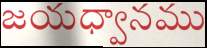
జయధ్వానము